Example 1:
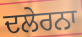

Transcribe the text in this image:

ਦਲੇਰਨਾ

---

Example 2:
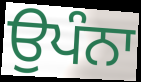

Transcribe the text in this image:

ਉਪੰਨਾ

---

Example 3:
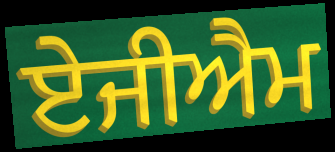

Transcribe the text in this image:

ਏਜੀਐਮ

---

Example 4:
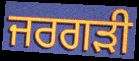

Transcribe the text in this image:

ਜਰਗੜੀ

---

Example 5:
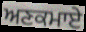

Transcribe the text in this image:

ਅਣਕਮਾਏ